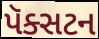
પૅક્સટન